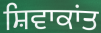
ਸ਼ਿਵਾਕਾਂਤ